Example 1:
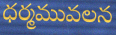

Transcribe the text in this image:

ధర్మమువలన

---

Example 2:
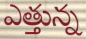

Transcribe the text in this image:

ఎత్తున్న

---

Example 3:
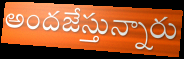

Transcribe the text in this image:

అందజేస్తున్నారు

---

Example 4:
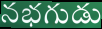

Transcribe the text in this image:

నభగుడు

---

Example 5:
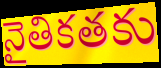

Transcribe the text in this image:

నైతికతకు